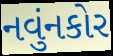
નવુંનકોર